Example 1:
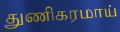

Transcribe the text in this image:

துணிகரமாய்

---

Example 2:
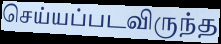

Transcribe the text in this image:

செய்யப்படவிருந்த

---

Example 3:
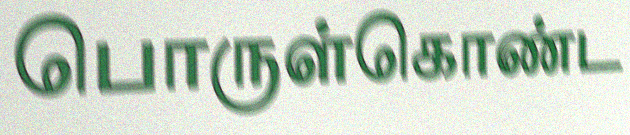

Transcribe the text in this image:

பொருள்கொண்ட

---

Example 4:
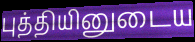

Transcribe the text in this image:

புத்தியினுடைய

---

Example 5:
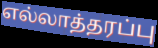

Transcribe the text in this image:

எல்லாத்தரப்பு